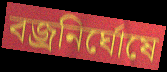
বজ্রনির্ঘোষে